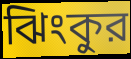
ঝিংকুর